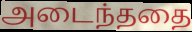
அடைந்ததை